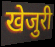
खेजुरी